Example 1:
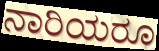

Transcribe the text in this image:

ನಾರಿಯರೂ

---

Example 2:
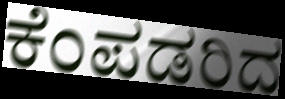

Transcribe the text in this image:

ಕೆಂಪಡರಿದ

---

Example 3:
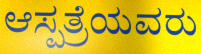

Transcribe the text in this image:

ಆಸ್ಪತ್ರೆಯವರು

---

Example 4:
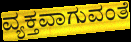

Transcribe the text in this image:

ವ್ಯಕ್ತವಾಗುವಂತೆ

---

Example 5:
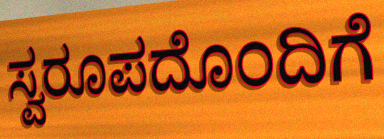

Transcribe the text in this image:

ಸ್ವರೂಪದೊಂದಿಗೆ